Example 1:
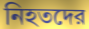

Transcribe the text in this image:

নিহতদের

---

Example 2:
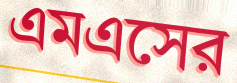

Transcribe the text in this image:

এমএসের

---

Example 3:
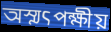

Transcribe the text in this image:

অস্মৎপক্ষীয়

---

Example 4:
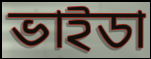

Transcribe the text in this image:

ভাইডা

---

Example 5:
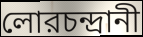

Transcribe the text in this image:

লোরচন্দ্রানী